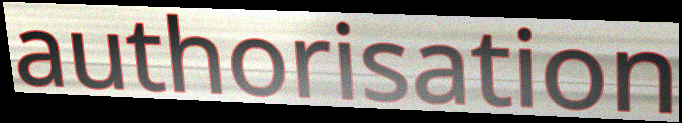
authorisation